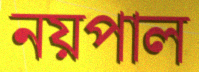
নয়পাল